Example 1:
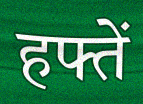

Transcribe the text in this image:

हफ्तें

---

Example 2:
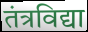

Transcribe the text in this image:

तंत्रविद्या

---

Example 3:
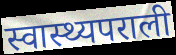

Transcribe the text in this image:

स्वास्थ्यपराली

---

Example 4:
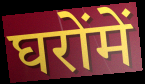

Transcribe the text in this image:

घरोंमें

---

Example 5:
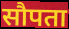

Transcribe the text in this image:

सौपता